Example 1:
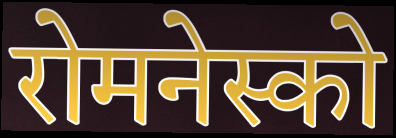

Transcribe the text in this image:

रोमनेस्को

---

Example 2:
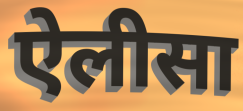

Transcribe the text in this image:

ऐलीसा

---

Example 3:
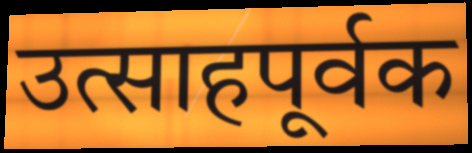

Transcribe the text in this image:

उत्साहपूर्वक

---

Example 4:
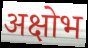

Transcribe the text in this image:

अक्षोभ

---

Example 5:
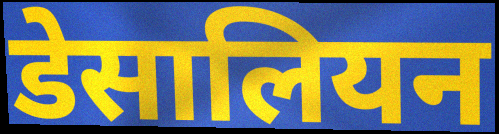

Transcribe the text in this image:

डेसालियन